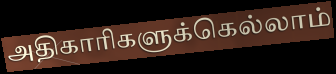
அதிகாரிகளுக்கெல்லாம்